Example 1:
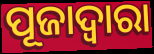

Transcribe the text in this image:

ପୂଜାଦ୍ୱାରା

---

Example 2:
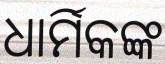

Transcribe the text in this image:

ଧାର୍ମିକଙ୍କ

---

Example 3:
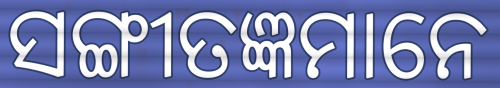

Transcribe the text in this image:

ସଙ୍ଗୀତଜ୍ଞମାନେ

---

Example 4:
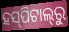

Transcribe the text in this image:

ହସ୍‌ପିଟାଲ୍‌ରୁ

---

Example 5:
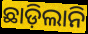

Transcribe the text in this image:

ଛାଡ଼ିଲାନି